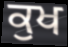
ਕੁਖ